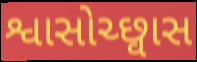
શ્વાસોચ્છ્વાસ